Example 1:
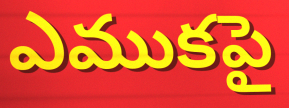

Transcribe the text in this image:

ఎముకపై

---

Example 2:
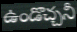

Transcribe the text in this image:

ఉండొచ్చనీ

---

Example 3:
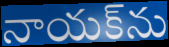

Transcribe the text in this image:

నాయక్‌ను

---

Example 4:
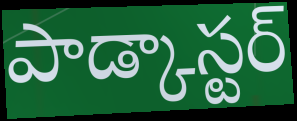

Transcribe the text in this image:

పాడ్కాస్టర్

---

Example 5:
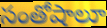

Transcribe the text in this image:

సంతోషాలూ